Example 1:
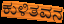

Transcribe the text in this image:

ಕುಳಿತವನ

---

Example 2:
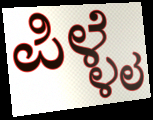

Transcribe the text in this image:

ಪಿಳ್ಳೈ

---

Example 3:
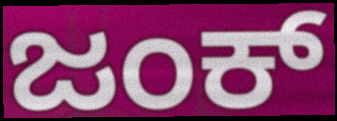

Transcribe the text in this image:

ಜಂಕ್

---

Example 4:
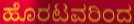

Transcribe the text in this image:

ಹೊರಟವರಿಂದ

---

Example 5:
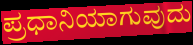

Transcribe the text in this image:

ಪ್ರಧಾನಿಯಾಗುವುದು